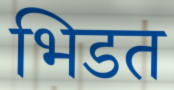
भिडत